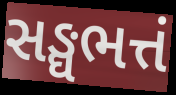
સઙ્ઘભત્તં